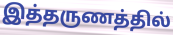
இத்தருணத்தில்